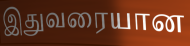
இதுவரையான